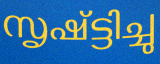
സൃഷ്ട്ടിച്ചു